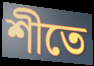
শীতে